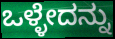
ಒಳ್ಳೇದನ್ನು